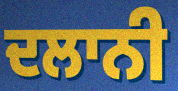
ਦਲਾਨੀ